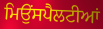
ਮਿਉਂਸਪੈਲਟੀਆਂ